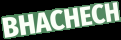
BHACHECH